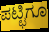
ಪಟ್ಟಿಗೂ